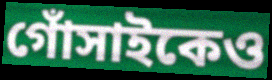
গোঁসাইকেও